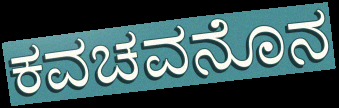
ಕವಚವನೊನ